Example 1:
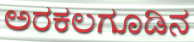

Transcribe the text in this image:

ಅರಕಲಗೂಡಿನ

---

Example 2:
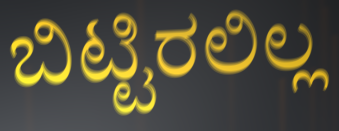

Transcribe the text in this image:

ಬಿಟ್ಟಿರಲಿಲ್ಲ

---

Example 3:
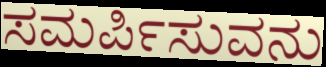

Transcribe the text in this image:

ಸಮರ್ಪಿಸುವನು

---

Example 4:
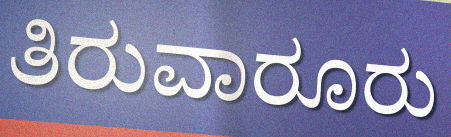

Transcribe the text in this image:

ತಿರುವಾರೂರು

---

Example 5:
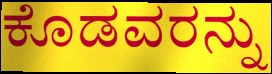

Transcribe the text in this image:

ಕೊಡವರನ್ನು